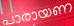
പാരായണ